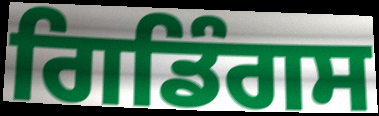
ਗਿਡਿੰਗਸ